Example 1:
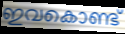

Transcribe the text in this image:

ഇവകൊണ്ട്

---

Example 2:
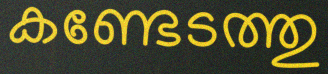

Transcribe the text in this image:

കണ്ടേടത്തു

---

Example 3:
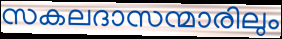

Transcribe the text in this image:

സകലദാസന്മാരിലും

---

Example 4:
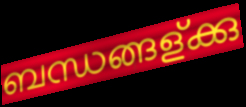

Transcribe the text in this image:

ബന്ധങ്ങള്ക്കു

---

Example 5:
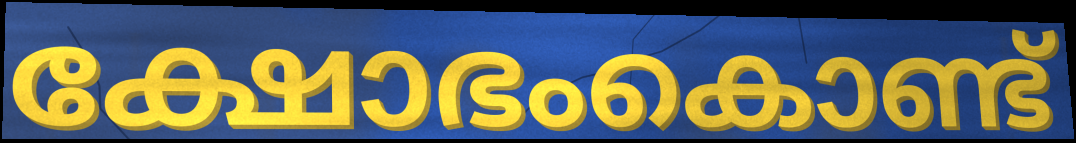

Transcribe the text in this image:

ക്ഷോഭംകൊണ്ട്